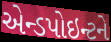
એન્ડપોઇન્ટને